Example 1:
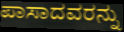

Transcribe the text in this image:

ಪಾಸಾದವರನ್ನು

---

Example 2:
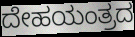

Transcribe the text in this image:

ದೇಹಯಂತ್ರದ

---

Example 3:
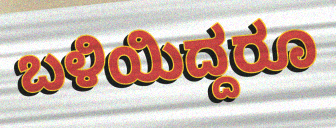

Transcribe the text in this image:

ಬಳಿಯಿದ್ದರೂ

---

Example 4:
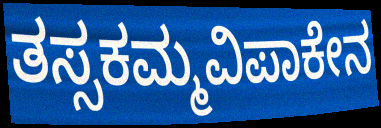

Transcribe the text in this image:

ತಸ್ಸಕಮ್ಮವಿಪಾಕೇನ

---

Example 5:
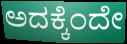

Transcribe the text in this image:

ಅದಕ್ಕೆಂದೇ